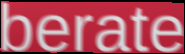
berate